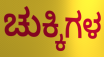
ಚುಕ್ಕಿಗಳ